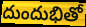
దుందుభితో